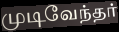
முடிவேந்தர்